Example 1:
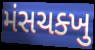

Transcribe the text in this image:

મંસચક્ખુ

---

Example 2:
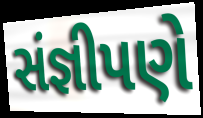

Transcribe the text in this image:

સંજ્ઞીપણે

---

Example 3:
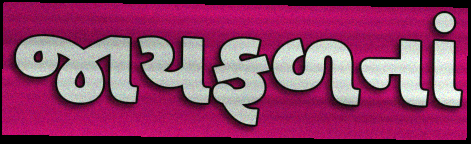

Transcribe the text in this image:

જાયફળનાં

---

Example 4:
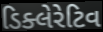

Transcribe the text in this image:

ડિક્લેરેટિવ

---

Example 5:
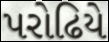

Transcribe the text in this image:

પરોઢિયે